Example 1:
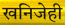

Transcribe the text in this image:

खनिजेही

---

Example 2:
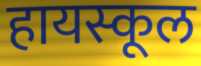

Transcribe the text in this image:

हायस्‍कूल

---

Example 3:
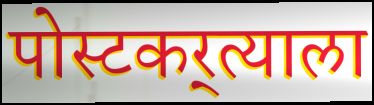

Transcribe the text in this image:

पोस्टकर्त्याला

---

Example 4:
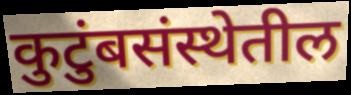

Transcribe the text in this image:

कुटुंबसंस्थेतील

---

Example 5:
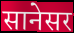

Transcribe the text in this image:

सानेसर